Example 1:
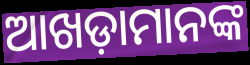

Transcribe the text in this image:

ଆଖଡ଼ାମାନଙ୍କ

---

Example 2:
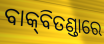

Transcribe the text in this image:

ବାକ୍‌ବିତଣ୍ଡାରେ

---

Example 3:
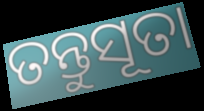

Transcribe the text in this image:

ତନ୍ତୁସୂତା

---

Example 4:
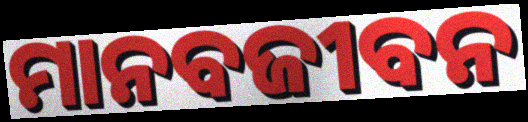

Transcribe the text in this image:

ମାନବଜୀବନ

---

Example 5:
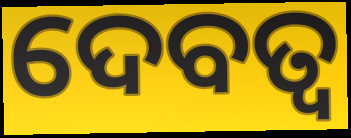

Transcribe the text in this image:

ଦେବତ୍ୱ